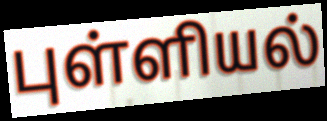
புள்ளியல்